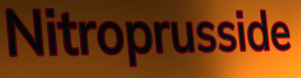
Nitroprusside